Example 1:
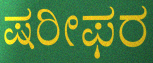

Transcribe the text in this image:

ಷರೀಫರ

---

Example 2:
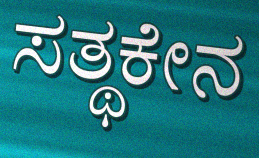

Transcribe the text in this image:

ಸತ್ಥಕೇನ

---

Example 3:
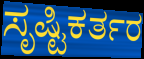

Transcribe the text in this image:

ಸೃಷ್ಟಿಕರ್ತರ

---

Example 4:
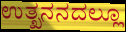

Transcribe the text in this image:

ಉತ್ಖನನದಲ್ಲೂ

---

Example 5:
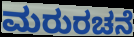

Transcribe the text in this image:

ಮರುರಚನೆ